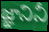
జ్ఞానినీ